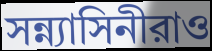
সন্ন্যাসিনীরাও